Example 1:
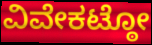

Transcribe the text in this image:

ವಿವೇಕಟ್ಠೋ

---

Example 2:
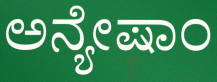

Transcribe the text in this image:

ಅನ್ಯೇಷಾಂ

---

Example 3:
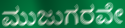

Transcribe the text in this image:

ಮುಜುಗರವೇ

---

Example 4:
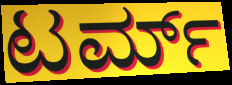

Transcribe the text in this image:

ಟರ್ಮ್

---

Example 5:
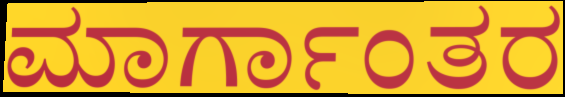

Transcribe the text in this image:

ಮಾರ್ಗಾಂತರ